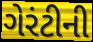
ગેરંટીની